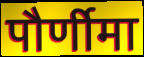
पौर्णीमा